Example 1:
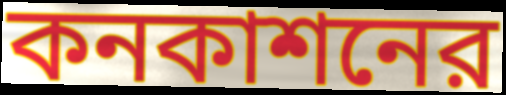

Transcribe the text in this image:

কনকাশনের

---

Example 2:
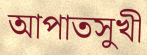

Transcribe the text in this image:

আপাতসুখী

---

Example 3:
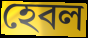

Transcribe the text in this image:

হেবল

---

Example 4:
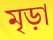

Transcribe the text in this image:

মৃড়া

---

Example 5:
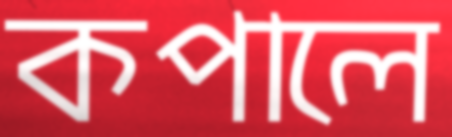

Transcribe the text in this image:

কপালে